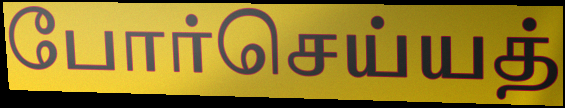
போர்செய்யத்